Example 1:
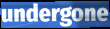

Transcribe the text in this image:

undergone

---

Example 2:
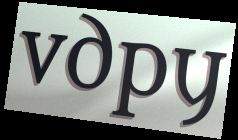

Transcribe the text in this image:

vdpy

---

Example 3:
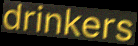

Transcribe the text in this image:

drinkers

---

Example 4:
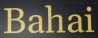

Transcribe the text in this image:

Bahai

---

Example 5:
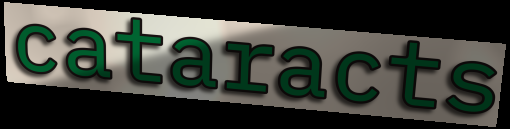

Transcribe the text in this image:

cataracts